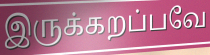
இருக்கறப்பவே